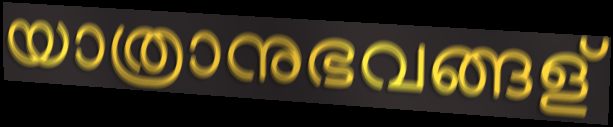
യാത്രാനുഭവങ്ങള്